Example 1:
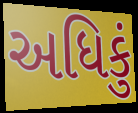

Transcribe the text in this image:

અધિકું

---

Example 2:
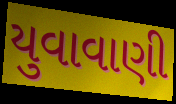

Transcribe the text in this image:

યુવાવાણી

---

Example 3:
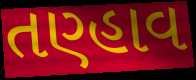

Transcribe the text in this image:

તણ્હાવ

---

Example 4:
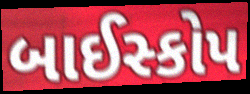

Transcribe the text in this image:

બાઈસ્કોપ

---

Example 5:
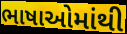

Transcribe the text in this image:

ભાષાઓમાંથી